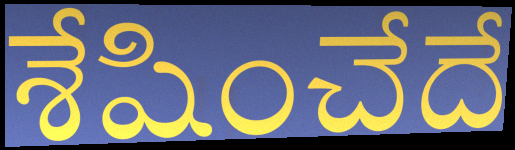
శేషించేదే